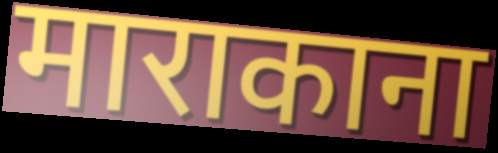
माराकाना